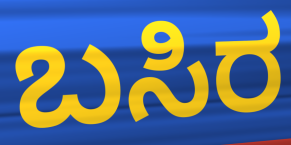
ಬಸಿರ